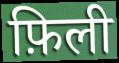
फ़िली